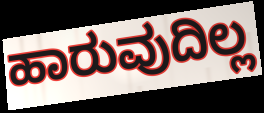
ಹಾರುವುದಿಲ್ಲ